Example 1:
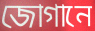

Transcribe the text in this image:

জোগানে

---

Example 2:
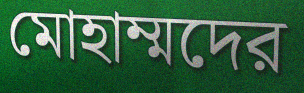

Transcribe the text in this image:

মোহাম্মদের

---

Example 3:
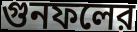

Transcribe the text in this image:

গুনফলের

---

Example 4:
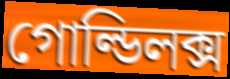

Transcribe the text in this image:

গোল্ডিলক্স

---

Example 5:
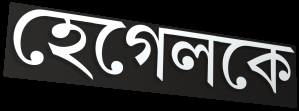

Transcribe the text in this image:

হেগেলকে